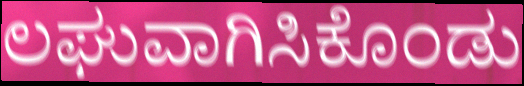
ಲಘುವಾಗಿಸಿಕೊಂಡು